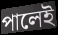
পালেই